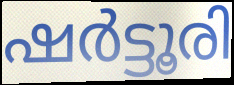
ഷർട്ടൂരി